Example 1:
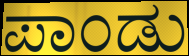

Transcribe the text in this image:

ಪಾಂಡು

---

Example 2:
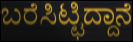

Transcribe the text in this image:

ಬರೆಸಿಟ್ಟಿದ್ದಾನೆ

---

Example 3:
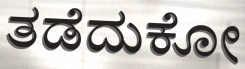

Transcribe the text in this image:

ತಡೆದುಕೋ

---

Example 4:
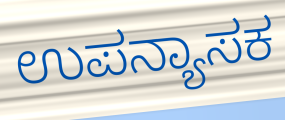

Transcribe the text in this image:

ಉಪನ್ಯಾಸಕ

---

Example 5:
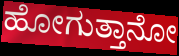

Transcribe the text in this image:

ಹೋಗುತ್ತಾನೋ